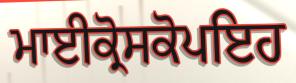
ਮਾਈਕ੍ਰੋਸਕੋਪਇਹ